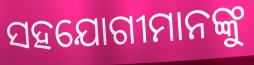
ସହଯୋଗୀମାନଙ୍କୁ